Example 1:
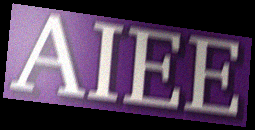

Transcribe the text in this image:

AIEE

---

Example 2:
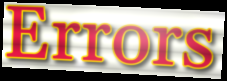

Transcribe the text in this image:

Errors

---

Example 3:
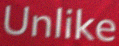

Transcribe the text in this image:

Unlike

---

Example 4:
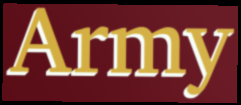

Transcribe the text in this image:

Army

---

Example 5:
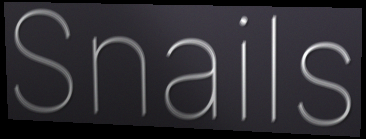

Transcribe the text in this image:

Snails